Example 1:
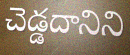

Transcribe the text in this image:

చెడ్డదానిని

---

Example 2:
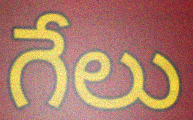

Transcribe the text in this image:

గేలు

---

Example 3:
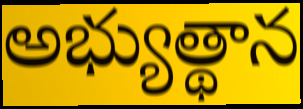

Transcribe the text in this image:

అభ్యుత్థాన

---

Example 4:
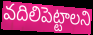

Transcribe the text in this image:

వదిలిపెట్టాలని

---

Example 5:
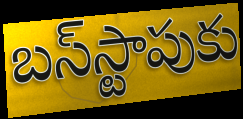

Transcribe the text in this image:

బస్‌స్టాపుకు